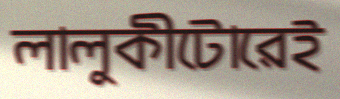
লালুকীটোৱেই